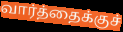
வார்த்தைக்குச்